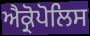
ਐਕ੍ਰੋਪੋਲਿਸ